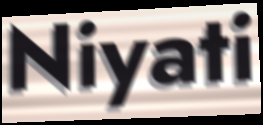
Niyati